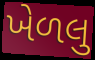
ખેળલુ